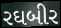
રઘબીર